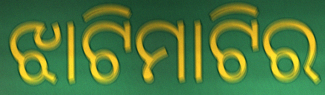
ଝାଟିମାଟିର